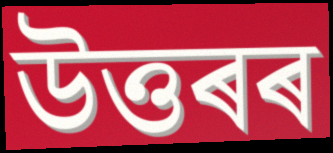
উত্তৰৰ